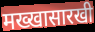
मख्खासारखी